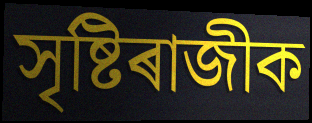
সৃষ্টিৰাজীক